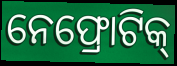
ନେଫ୍ରୋଟିକ୍